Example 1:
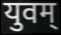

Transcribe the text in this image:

युवम्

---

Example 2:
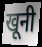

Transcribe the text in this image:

खूनी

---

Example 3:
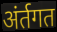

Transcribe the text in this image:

अंर्तगत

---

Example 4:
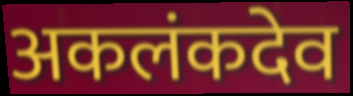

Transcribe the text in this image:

अकलंकदेव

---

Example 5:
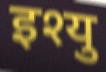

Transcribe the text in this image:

इश्यु